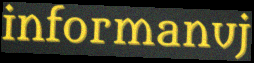
informanuj